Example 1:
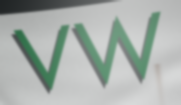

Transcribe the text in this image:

VW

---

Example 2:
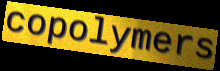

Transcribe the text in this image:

copolymers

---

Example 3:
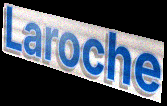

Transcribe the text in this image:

Laroche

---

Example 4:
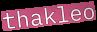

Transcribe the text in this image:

thakleo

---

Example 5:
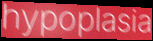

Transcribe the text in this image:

hypoplasia